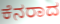
ಕೆನರಾದ